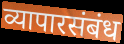
व्यापारसंबंध